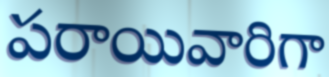
పరాయివారిగా